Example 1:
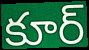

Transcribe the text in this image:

కూర్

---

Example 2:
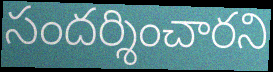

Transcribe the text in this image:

సందర్శించారని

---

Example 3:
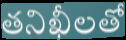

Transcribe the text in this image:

తనిఖీలతో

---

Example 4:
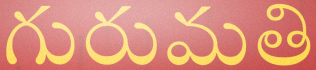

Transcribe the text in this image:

గురుమతి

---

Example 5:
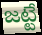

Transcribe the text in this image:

జట్టే